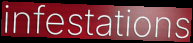
infestations